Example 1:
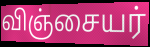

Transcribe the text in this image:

விஞ்சையர்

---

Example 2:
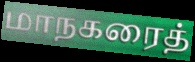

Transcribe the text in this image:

மாநகரைத்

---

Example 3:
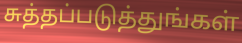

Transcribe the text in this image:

சுத்தப்படுத்துங்கள்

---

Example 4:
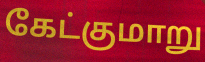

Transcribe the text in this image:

கேட்குமாறு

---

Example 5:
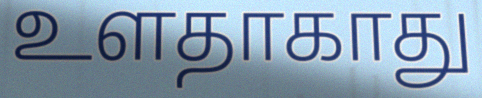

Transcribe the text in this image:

உளதாகாது